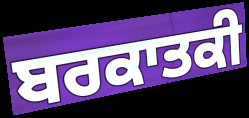
ਬਰਕਾਤਕੀ